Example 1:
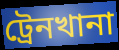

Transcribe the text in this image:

ট্রেনখানা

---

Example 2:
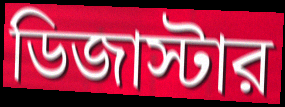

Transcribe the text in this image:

ডিজাস্টার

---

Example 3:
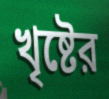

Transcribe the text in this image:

খৃষ্টের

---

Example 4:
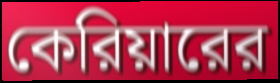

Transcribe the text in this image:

কেরিয়ারের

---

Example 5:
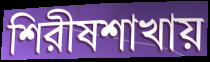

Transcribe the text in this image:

শিরীষশাখায়